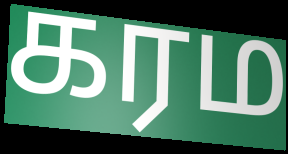
கரம